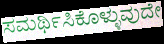
ಸಮರ್ಥಿಸಿಕೊಳ್ಳುವುದೇ